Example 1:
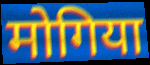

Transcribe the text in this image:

मोगिया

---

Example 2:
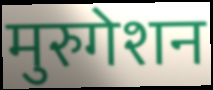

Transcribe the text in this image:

मुरुगेशन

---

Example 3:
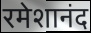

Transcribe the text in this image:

रमेशानंद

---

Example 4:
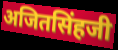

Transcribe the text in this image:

अजितसिंहजी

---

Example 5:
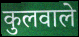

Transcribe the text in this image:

कुलवाले